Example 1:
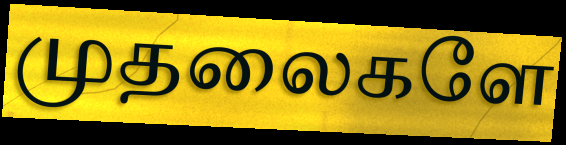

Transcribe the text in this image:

முதலைகளே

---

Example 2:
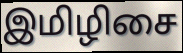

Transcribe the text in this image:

இமிழிசை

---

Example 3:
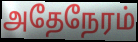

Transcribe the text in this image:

அதேநேரம்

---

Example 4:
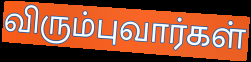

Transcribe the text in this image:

விரும்புவார்கள்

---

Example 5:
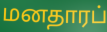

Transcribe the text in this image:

மனதாரப்